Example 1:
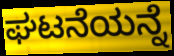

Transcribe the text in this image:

ಘಟನೆಯನ್ನೆ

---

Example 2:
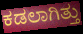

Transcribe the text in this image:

ಕಡಲಾಗಿತ್ತು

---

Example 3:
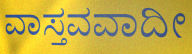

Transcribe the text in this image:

ವಾಸ್ತವವಾದೀ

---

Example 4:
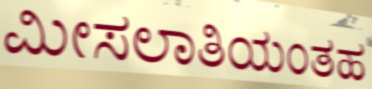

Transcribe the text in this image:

ಮೀಸಲಾತಿಯಂತಹ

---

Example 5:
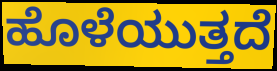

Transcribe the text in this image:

ಹೊಳೆಯುತ್ತದೆ